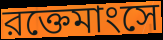
রক্তেমাংসে